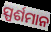
ସ୍ପର୍ଶମାନ